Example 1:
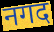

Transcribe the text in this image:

नगद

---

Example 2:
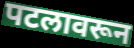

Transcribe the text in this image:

पटलावरून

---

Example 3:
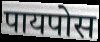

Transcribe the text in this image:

पायपोस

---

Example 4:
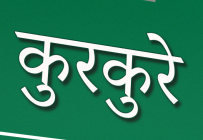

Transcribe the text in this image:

कुरकुरे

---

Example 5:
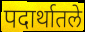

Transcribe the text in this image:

पदार्थातले